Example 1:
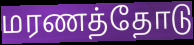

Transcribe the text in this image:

மரணத்தோடு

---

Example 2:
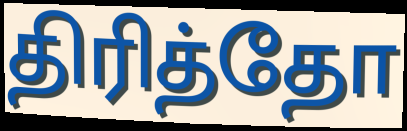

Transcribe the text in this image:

திரித்தோ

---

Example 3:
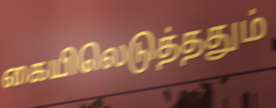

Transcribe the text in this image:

கையிலெடுத்ததும்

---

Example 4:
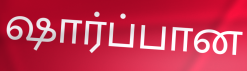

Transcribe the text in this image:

ஷார்ப்பான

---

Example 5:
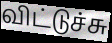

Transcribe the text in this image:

விட்டுச்சு